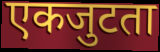
एकजुटता